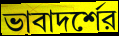
ভাবাদর্শের